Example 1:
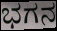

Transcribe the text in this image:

ಭಗನ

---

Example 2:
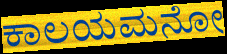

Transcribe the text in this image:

ಕಾಲಯಮನೋ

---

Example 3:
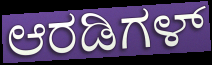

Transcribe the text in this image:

ಆರಡಿಗಳ್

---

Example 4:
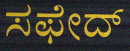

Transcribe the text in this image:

ಸಫೇದ್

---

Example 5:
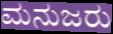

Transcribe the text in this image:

ಮನುಜರು